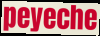
peyeche